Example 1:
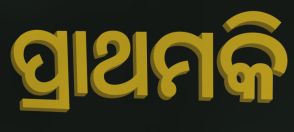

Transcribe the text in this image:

ପ୍ରାଥମକି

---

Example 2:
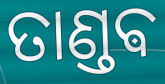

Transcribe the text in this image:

ତାଣ୍ଡଵ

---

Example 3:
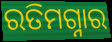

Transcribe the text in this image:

ରତିମଗ୍ନାର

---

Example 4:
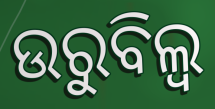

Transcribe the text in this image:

ଉରୁବିଲ୍ୱ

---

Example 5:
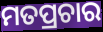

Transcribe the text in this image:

ମତପ୍ରଚାର